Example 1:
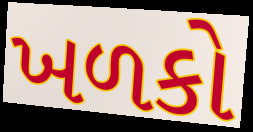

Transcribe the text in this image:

ખળકો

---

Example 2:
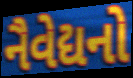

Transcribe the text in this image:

નૈવેદ્યનો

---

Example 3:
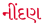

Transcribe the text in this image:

નીંદણ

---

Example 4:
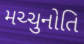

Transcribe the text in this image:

મચ્ચુનોતિ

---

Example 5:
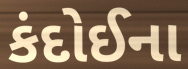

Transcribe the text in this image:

કંદોઈના